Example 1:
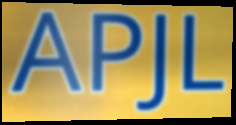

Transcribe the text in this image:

APJL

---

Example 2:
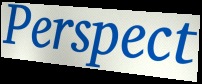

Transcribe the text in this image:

Perspect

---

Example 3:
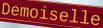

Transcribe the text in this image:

Demoiselle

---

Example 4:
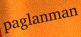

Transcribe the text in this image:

paglanman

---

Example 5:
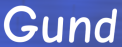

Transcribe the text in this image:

Gund